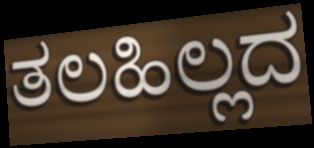
ತಲಹಿಲ್ಲದ